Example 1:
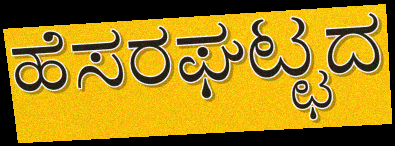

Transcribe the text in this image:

ಹೆಸರಘಟ್ಟದ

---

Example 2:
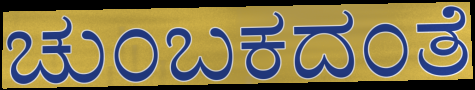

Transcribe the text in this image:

ಚುಂಬಕದಂತೆ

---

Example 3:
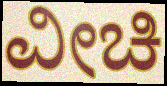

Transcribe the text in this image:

ವೀಚಿ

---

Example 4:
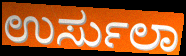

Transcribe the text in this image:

ಉರ್ಸುಲಾ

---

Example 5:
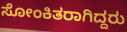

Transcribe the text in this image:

ಸೋಂಕಿತರಾಗಿದ್ದರು